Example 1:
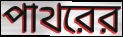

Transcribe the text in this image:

পাথরের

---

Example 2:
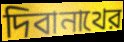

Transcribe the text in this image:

দিবানাথের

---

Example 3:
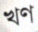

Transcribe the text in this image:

খণ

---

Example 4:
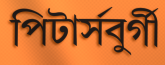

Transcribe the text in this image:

পিটার্সবুর্গী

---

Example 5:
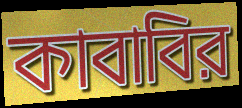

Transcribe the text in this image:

কাবাবির